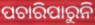
ପଚାରିପାରୁନି